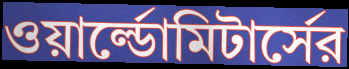
ওয়ার্ল্ডোমিটার্সের